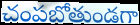
చంపబోతుండగా